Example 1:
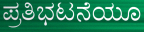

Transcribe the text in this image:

ಪ್ರತಿಭಟನೆಯೂ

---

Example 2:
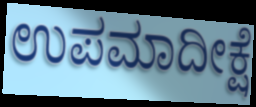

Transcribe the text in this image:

ಉಪಮಾದೀಕ್ಷೆ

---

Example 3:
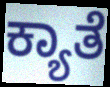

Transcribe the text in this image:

ಕ್ಯಾತೆ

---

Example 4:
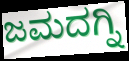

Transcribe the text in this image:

ಜಮದಗ್ನಿ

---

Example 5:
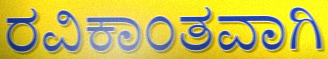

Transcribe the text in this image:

ರವಿಕಾಂತವಾಗಿ